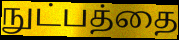
நுட்பத்தை